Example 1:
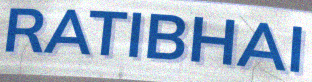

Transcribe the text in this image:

RATIBHAI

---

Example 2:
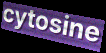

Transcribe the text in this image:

cytosine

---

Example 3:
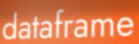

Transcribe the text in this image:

dataframe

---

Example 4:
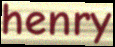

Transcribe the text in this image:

henry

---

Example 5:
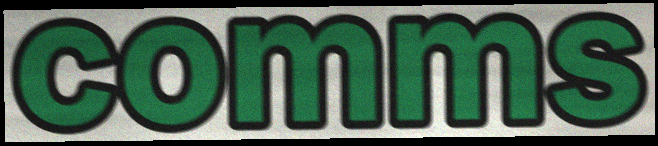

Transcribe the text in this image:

comms